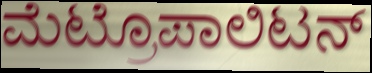
ಮೆಟ್ರೊಪಾಲಿಟನ್